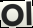
Ol